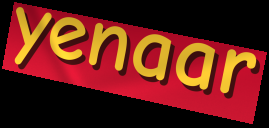
yenaar